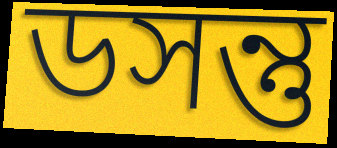
ডসন্তু